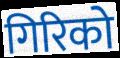
गिरिको